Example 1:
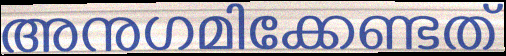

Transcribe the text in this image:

അനുഗമിക്കേണ്ടത്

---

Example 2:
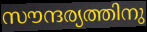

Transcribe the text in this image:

സൗന്ദര്യത്തിനു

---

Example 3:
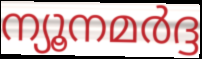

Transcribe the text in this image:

ന്യൂനമർദ്ദ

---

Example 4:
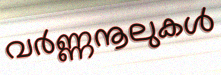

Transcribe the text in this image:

വർണ്ണനൂലുകൾ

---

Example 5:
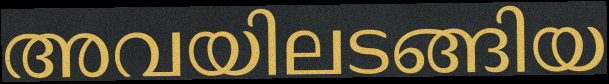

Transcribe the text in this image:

അവയിലടങ്ങിയ